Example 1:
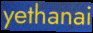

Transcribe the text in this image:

yethanai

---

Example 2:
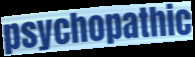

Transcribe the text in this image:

psychopathic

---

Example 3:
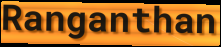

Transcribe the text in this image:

Ranganthan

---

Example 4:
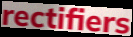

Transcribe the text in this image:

rectifiers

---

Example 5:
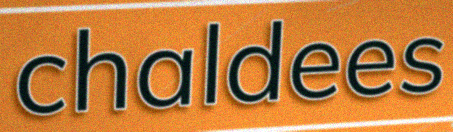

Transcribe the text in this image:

chaldees